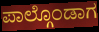
ಪಾಲ್ಗೊಂಡಾಗ